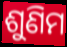
ଶୁଣିମ